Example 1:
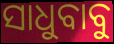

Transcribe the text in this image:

ସାଧୁବାବୁ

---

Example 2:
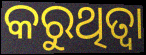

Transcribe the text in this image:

କରୁଥିତ୍ବା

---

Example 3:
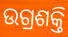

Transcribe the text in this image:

ଉଗ୍ରଶକ୍ତି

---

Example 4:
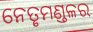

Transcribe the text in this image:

ନେତୃମଣ୍ଡଳର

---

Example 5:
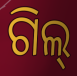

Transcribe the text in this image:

ଗିଲ୍